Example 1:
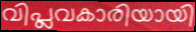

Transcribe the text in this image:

വിപ്ലവകാരിയായി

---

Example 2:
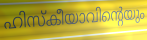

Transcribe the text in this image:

ഹിസ്കീയാവിന്റെയും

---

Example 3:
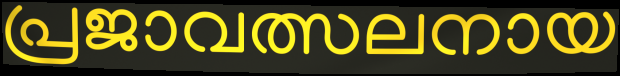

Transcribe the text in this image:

പ്രജാവത്സലനായ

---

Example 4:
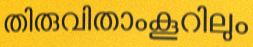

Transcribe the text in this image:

തിരുവിതാംകൂറിലും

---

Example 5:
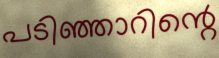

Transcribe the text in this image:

പടിഞ്ഞാറിന്റെ